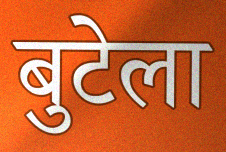
बुटेला